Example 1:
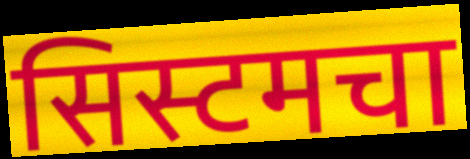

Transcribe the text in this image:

सिस्टमचा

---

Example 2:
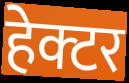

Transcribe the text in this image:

हेक्‍टर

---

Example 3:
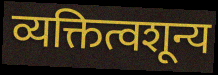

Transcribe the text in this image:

व्यक्तित्वशून्य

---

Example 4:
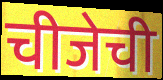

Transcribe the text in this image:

चीजेची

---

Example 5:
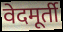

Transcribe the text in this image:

वेदमूर्ती